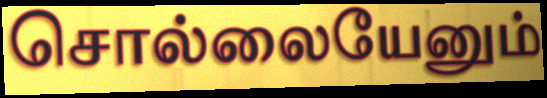
சொல்லையேனும்